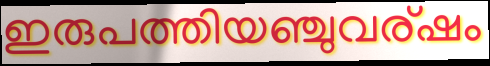
ഇരുപത്തിയഞ്ചുവര്ഷം